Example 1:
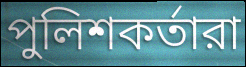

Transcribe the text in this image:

পুলিশকর্তারা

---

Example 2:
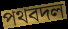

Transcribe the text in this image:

পথবদল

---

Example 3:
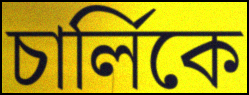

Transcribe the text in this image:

চার্লিকে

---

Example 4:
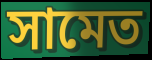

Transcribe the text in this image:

সামেত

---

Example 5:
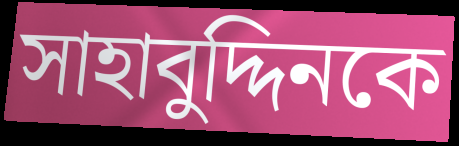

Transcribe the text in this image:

সাহাবুদ্দিনকে